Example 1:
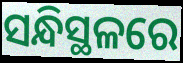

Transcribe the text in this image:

ସନ୍ଧିସ୍ଥଳରେ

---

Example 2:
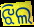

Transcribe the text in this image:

ଝିଲ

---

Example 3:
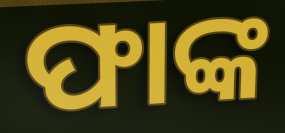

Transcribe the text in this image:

ଫାଙ୍କ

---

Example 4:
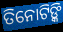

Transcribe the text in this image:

ତିନୋଟିଙ୍କି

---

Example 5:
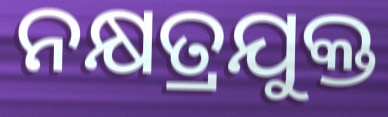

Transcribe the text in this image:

ନକ୍ଷତ୍ରଯୁକ୍ତ